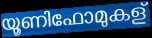
യൂണിഫോമുകള്